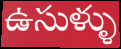
ఉసుళ్ళు